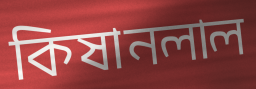
কিষানলাল